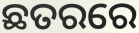
ଛତରରେ